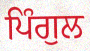
ਪਿੰਗੁਲ